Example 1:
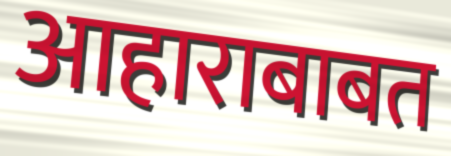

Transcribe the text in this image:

आहाराबाबत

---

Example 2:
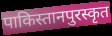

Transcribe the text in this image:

पाकिस्तानपुरस्कृत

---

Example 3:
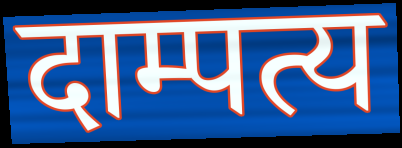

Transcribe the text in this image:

दाम्पत्य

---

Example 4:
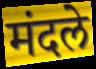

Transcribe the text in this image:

मंदले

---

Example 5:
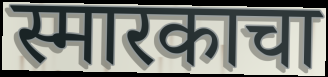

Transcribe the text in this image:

स्मारकाचा